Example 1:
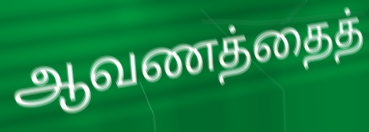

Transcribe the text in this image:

ஆவணத்தைத்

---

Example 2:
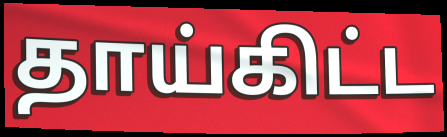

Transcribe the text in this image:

தாய்கிட்ட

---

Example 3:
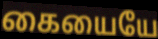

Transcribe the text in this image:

கையையே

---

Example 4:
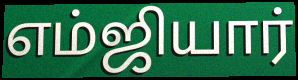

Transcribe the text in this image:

எம்ஜியார்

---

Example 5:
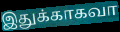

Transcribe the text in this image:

இதுக்காகவா